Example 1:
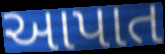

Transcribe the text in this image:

આપાત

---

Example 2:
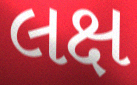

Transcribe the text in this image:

લક્ષ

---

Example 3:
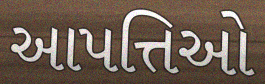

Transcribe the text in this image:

આપત્તિઓ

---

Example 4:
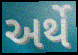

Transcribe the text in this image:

અર્થે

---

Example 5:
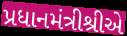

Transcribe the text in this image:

પ્રધાનમંત્રીશ્રીએ